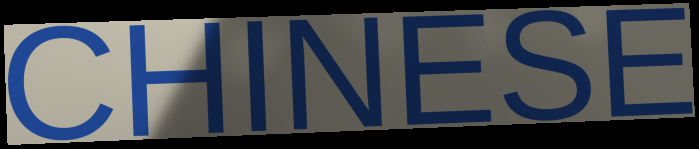
CHINESE